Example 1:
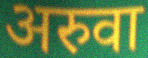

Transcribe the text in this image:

अरुवा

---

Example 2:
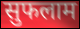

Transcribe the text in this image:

सुफलाम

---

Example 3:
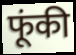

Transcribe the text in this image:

फूंकी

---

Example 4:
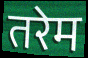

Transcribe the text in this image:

तरेम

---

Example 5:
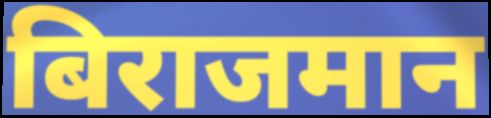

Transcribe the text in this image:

बिराजमान